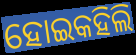
ହୋଇକହିଲି